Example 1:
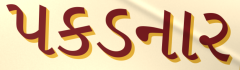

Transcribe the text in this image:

પકડનાર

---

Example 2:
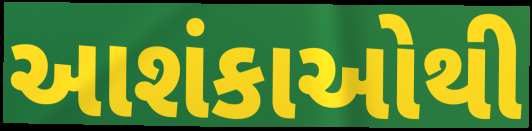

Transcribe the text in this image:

આશંકાઓથી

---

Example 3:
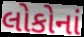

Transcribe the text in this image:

લોકોનાં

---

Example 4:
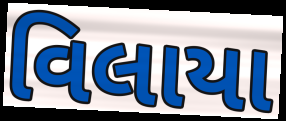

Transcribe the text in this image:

વિલાયા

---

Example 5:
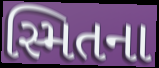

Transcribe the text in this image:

સ્મિતના